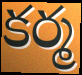
కర్మ